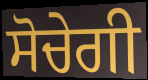
ਸੋਚੇਗੀ